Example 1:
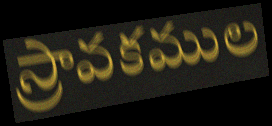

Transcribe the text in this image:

స్రావకముల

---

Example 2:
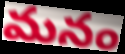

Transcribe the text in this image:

మనం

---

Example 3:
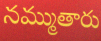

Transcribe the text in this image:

నమ్ముతారు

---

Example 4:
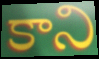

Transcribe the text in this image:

కాని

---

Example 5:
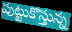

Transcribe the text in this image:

పుట్టుకొస్తున్న